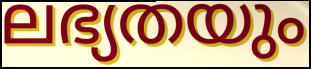
ലഭ്യതയും